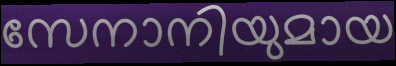
സേനാനിയുമായ